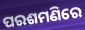
ପରଶମଣିରେ